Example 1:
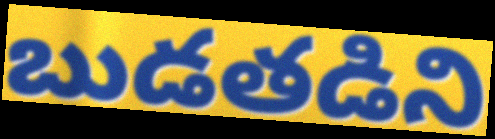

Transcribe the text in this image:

బుడతడిని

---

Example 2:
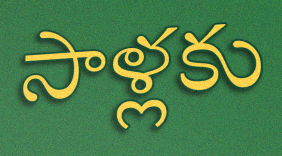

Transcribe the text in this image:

సాళ్లకు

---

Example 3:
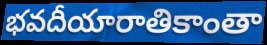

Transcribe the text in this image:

భవదీయారాతికాంతా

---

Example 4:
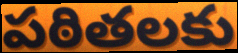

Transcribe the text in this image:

పఠితలకు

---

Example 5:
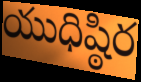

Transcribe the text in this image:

యుధిష్ఠిర